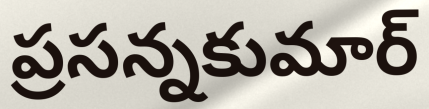
ప్రసన్నకుమార్